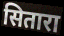
सितारा